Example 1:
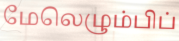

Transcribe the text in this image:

மேலெழும்பிப்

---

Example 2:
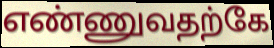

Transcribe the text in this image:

எண்ணுவதற்கே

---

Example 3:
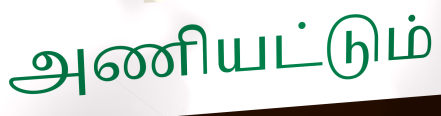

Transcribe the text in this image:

அணியட்டும்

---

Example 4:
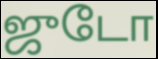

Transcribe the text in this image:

ஜுடோ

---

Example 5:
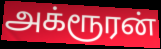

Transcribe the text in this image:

அக்ரூரன்